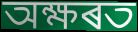
অক্ষৰত